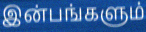
இன்பங்களும்